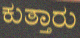
ಕುತ್ತಾರು